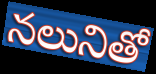
నలునితో